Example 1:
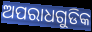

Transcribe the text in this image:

ଅପରାଧଗୁଡିକ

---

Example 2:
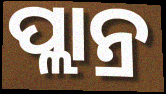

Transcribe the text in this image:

ପ୍ଲାନ୍ର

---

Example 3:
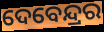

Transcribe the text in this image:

ଦେବେନ୍ଦ୍ରର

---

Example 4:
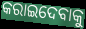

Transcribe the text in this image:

କରାଇଦେବାକୁ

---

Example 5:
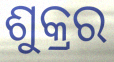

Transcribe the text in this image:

ଶୁକ୍ରର